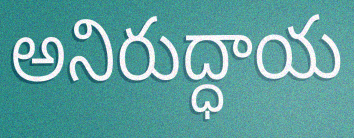
అనిరుద్ధాయ